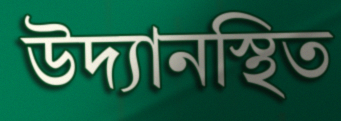
উদ্যানস্থিত